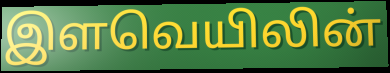
இளவெயிலின்